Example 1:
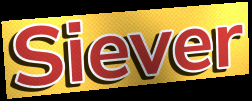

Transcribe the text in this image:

Siever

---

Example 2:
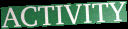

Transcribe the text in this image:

ACTIVITY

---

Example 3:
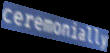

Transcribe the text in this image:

ceremonially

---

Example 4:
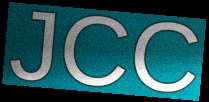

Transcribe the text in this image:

JCC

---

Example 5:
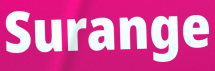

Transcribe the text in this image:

Surange